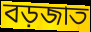
বড়জাত